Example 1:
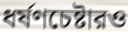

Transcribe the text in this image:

ধর্ষণচেষ্টারও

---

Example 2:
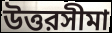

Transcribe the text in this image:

উত্তরসীমা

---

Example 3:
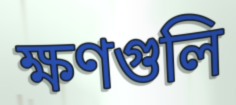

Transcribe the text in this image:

ক্ষণগুলি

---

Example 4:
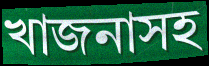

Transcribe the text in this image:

খাজনাসহ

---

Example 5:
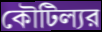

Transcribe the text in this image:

কৌটিল্যর